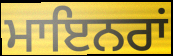
ਮਾਇਨਰਾਂ